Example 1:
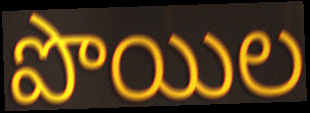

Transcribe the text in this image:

పొయిల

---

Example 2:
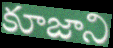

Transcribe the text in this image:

కూజాని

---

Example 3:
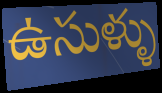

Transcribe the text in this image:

ఉసుళ్ళు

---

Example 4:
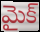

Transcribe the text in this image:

మైక్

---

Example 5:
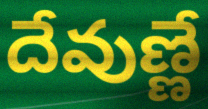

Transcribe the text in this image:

దేవుణ్ణే